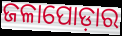
ଜଳାପୋଡ଼ାର